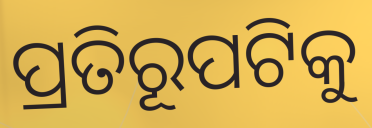
ପ୍ରତିରୂପଟିକୁ